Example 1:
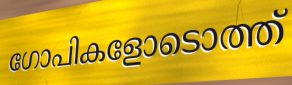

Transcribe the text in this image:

ഗോപികളോടൊത്ത്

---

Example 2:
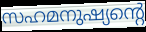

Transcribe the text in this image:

സഹമനുഷ്യന്റെ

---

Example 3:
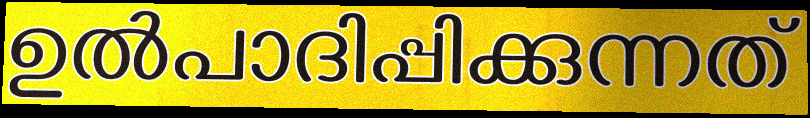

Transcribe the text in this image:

ഉൽപാദിപ്പിക്കുന്നത്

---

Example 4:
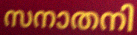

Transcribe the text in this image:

സനാതനി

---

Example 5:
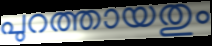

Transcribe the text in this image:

പുറത്തായതും